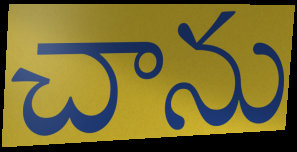
చాను